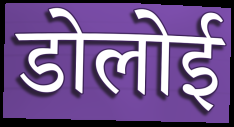
डोलोई